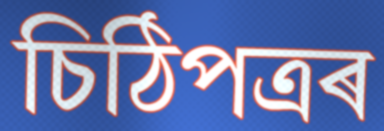
চিঠিপত্ৰৰ